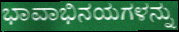
ಭಾವಾಭಿನಯಗಳನ್ನು